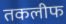
तकलीफ